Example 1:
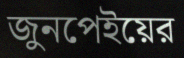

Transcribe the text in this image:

জুনপেইয়ের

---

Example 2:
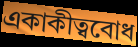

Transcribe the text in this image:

একাকীত্ববোধ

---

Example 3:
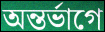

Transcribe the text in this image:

অন্তর্ভাগে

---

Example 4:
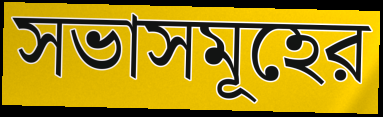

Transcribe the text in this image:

সভাসমূহের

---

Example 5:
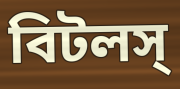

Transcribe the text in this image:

বিটলস্